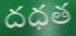
దధత